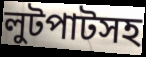
লুটপাটসহ